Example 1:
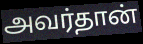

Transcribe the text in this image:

அவர்தான்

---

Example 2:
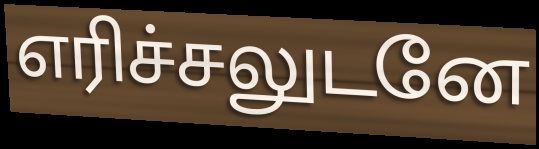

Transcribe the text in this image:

எரிச்சலுடனே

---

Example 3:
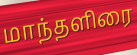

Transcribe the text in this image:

மாந்தளிரை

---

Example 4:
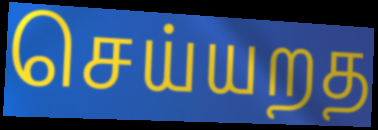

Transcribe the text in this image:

செய்யறத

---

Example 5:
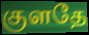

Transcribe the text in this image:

குளதே